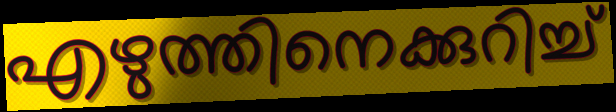
എഴുത്തിനെക്കുറിച്ച്